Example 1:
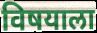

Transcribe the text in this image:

विषयाला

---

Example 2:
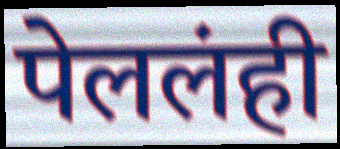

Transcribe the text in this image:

पेललंही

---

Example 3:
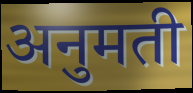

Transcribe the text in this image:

अनुमती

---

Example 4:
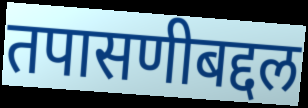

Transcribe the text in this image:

तपासणीबद्दल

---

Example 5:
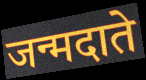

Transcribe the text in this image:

जन्मदाते